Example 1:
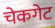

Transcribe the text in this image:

चेकगेट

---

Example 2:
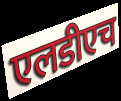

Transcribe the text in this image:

एलडीएच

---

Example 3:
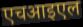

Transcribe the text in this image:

एचआइएल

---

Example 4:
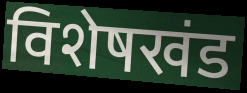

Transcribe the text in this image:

विशेषखंड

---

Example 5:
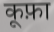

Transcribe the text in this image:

कूफ़ा